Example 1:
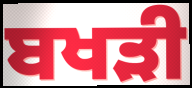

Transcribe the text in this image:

ਬਖੜੀ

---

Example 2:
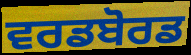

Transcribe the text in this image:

ਵਰਡਬੋਰਡ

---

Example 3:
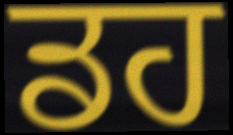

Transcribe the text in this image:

ਡਹ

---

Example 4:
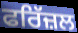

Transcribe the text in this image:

ਫਰਿੱਜ਼ਲ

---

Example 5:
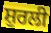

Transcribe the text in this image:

ਸ਼ੁਰਲੀ